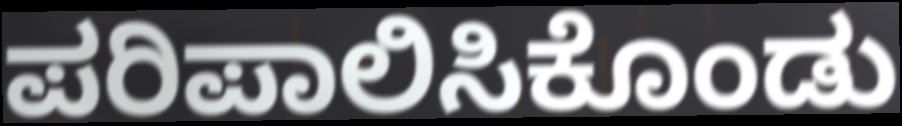
ಪರಿಪಾಲಿಸಿಕೊಂಡು